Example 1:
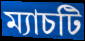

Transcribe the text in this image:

ম্যাচটি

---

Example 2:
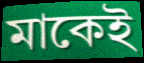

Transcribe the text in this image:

মাকেই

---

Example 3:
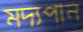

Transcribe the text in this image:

মদ্যপান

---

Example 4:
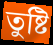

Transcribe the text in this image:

তুষ্টি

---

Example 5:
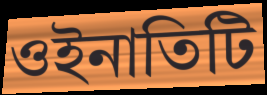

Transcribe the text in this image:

ওইনাতিটি